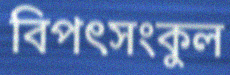
বিপৎসংকুল